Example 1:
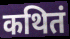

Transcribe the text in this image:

कथितं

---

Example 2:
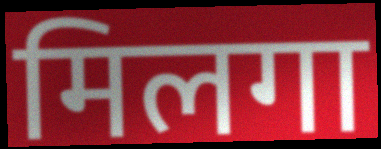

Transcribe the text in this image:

मिलगा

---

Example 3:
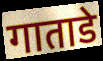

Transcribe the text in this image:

गाताडे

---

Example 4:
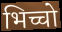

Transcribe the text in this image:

भिच्चो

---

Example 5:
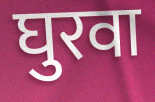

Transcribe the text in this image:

घुरवा